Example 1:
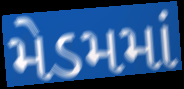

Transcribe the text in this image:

મેડમમાં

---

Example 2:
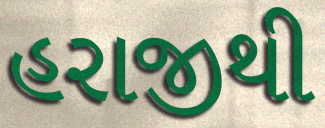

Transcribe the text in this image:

હરાજીથી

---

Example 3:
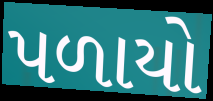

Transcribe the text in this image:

પળાયો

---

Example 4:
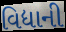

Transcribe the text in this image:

વિદ્યાની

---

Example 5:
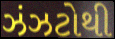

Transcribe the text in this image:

ઝંઝટોથી